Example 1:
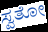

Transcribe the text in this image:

ಸ್ವತೋ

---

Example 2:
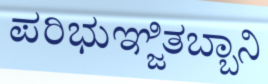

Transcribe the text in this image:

ಪರಿಭುಞ್ಜಿತಬ್ಬಾನಿ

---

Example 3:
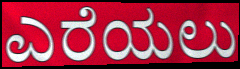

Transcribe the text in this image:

ಎರೆಯಲು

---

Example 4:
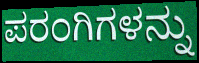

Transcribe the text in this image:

ಪರಂಗಿಗಳನ್ನು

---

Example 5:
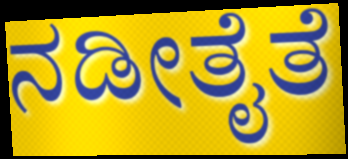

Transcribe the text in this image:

ನಡೀತೈತೆ